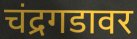
चंद्रगडावर